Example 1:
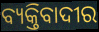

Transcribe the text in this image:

ବ୍ୟକ୍ତିବାଦୀର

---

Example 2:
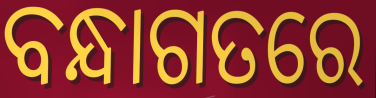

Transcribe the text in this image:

ବନ୍ଧାଗତରେ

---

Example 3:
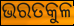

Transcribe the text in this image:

ଭରତକୁଳ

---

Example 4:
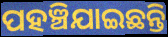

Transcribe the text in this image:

ପହଞ୍ଚିଯାଇଛନ୍ତି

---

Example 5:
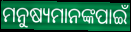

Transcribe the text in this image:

ମନୁଷ୍ୟମାନଙ୍କପାଇଁ